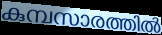
കുമ്പസാരത്തിൽ